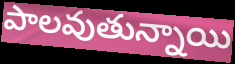
పాలవుతున్నాయి